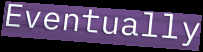
Eventually